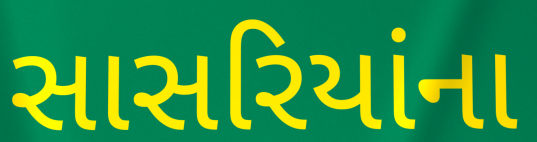
સાસરિયાંના